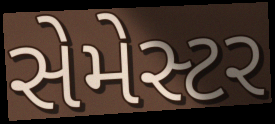
સેમેસ્ટર